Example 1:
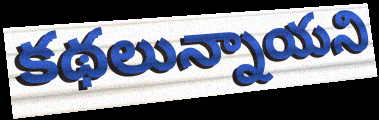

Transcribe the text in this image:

కథలున్నాయని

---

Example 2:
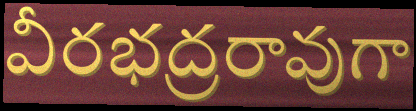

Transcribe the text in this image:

వీరభద్రరావుగా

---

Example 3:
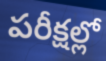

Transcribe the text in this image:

పరీక్షల్లో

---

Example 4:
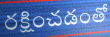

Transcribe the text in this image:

రక్షించడంతో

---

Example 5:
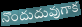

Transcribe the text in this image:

నొందుదువుగాక